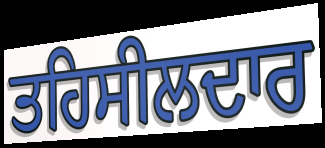
ਤਹਿਸੀਲਦਾਰ